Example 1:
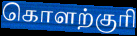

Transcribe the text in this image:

கொளற்குரி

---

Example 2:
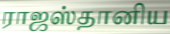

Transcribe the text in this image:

ராஜஸ்தானிய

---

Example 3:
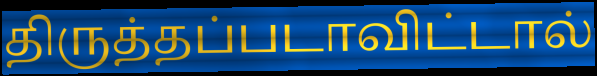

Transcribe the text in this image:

திருத்தப்படாவிட்டால்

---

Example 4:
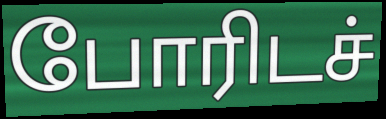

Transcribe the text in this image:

போரிடச்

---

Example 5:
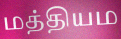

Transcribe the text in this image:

மத்தியம